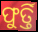
ଫୁର୍ତ୍ତି